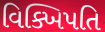
વિક્ખિપતિ